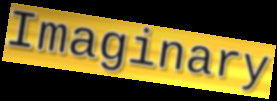
Imaginary